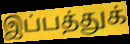
இப்பத்துக்